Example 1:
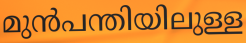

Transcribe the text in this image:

മുൻപന്തിയിലുള്ള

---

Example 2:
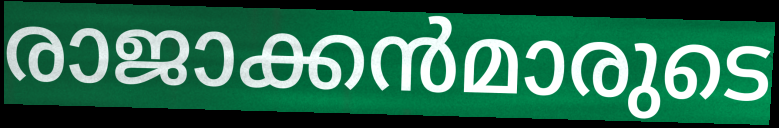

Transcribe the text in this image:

രാജാക്കൻമാരുടെ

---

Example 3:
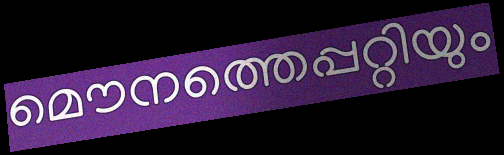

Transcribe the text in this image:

മൌനത്തെപ്പറ്റിയും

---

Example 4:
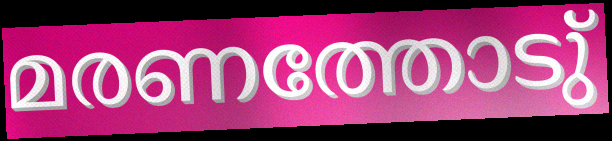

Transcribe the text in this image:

മരണത്തോടു്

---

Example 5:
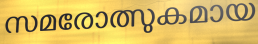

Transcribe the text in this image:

സമരോത്സുകമായ